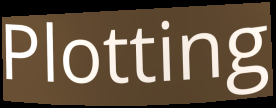
Plotting